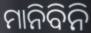
ମାନିବିନି